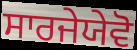
ਸਾਰਜੇਯੇਵੋ